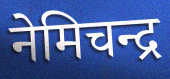
नेमिचन्द्र